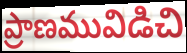
ప్రాణమువిడిచి